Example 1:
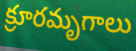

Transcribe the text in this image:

క్రూరమృగాలు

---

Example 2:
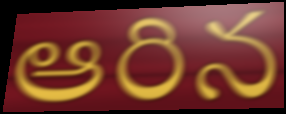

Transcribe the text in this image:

ఆరిన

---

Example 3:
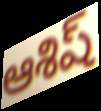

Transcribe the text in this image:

ఆశిష్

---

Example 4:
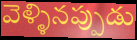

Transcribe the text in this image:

వెళ్ళినప్పుడు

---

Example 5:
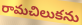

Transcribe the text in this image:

రామచిలుకను